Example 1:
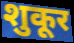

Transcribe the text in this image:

शुकूर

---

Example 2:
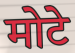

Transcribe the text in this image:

मोटे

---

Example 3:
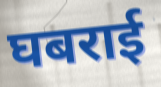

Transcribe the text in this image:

घबराई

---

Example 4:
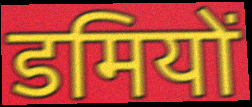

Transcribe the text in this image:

डमियों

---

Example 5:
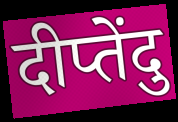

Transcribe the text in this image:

दीप्तेंदु